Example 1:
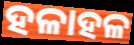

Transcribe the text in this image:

ହଳାହଳ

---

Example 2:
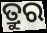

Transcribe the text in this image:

ତ୍ରୁର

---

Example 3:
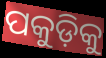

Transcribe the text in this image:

ପକୁଡ଼ିକୁ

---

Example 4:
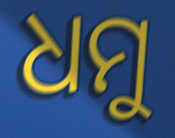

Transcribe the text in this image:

ଧମୁ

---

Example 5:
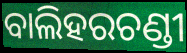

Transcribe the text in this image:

ବାଲିହରଚଣ୍ଡୀ